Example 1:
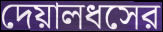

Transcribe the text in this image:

দেয়ালধসের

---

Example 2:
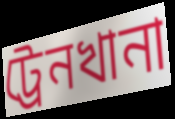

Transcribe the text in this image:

ট্রেনখানা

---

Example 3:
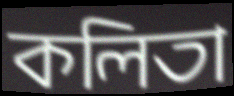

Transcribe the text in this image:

কলিতা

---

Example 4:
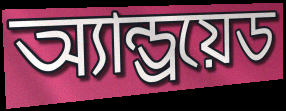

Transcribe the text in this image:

অ্যান্ড্রয়েড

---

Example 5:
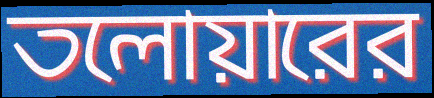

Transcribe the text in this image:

তলোয়ারের